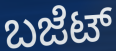
ಬಜೆಟ್